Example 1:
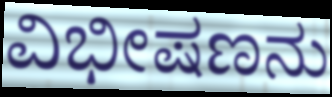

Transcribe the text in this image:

ವಿಭೀಷಣನು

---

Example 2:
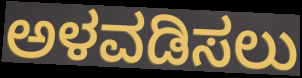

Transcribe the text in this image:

ಅಳವಡಿಸಲು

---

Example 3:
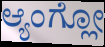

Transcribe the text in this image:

ಆ್ಯಂಗ್ಲೋ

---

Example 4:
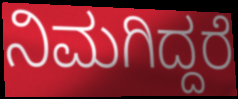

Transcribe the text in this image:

ನಿಮಗಿದ್ದರೆ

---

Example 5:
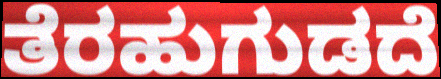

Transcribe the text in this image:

ತೆರಹುಗುಡದೆ